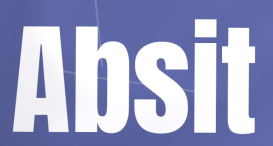
Absit